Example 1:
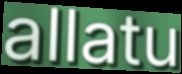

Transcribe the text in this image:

allatu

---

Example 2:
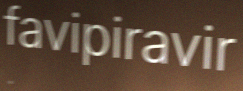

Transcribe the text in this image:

favipiravir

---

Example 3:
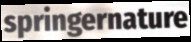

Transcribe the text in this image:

springernature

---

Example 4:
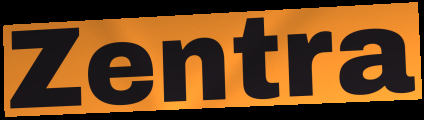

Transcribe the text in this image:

Zentra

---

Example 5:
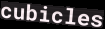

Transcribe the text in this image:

cubicles